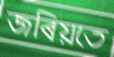
জৰিয়তে